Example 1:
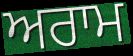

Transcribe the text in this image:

ਅਰਾਮ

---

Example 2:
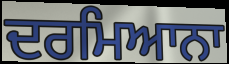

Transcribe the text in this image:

ਦਰਮਿਆਨਾ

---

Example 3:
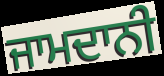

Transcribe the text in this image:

ਜਾਮਦਾਨੀ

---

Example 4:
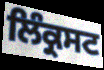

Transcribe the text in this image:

ਲਿੰਕ੍ਰਸਟ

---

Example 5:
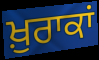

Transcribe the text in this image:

ਖ਼ੁਰਾਕਾਂ